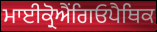
ਮਾਈਕ੍ਰੋਐਂਗਿਓਪੈਥਿਕ